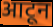
आटून